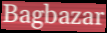
Bagbazar